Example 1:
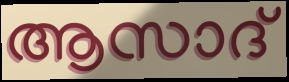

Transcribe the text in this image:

ആസാദ്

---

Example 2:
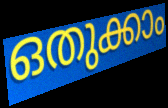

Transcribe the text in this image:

ഒതുക്കാം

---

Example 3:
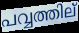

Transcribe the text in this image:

പവ്വത്തില്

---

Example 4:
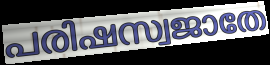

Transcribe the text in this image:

പരിഷസ്വജാതേ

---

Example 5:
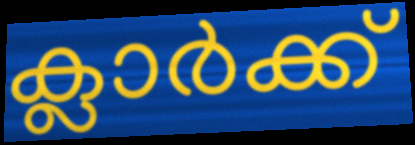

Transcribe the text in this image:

ക്ലാർക്ക്